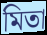
মিতা